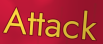
Attack